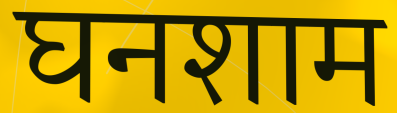
घनशाम